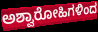
ಅಶ್ವಾರೋಹಿಗಳಿಂದ